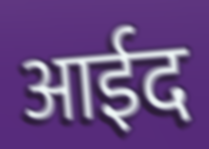
आईद